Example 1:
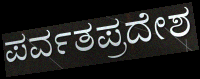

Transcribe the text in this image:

ಪರ್ವತಪ್ರದೇಶ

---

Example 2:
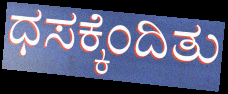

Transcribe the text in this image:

ಧಸಕ್ಕೆಂದಿತು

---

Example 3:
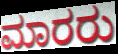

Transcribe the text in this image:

ಮಾರರು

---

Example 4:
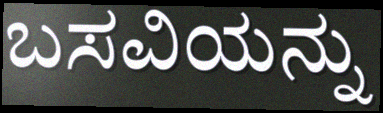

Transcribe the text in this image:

ಬಸವಿಯನ್ನು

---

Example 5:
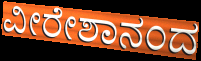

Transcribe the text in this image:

ವೀರೇಶಾನಂದ